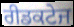
ਰੀਡਕਟੇਜ